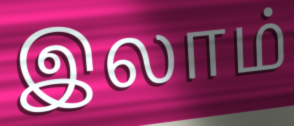
இலாம்